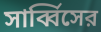
সার্ব্বিসের